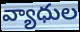
వ్యాధుల